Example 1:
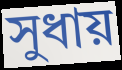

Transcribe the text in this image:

সুধায়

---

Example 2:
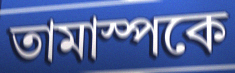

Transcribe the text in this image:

তামাস্পকে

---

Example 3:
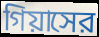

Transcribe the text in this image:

গিয়াসের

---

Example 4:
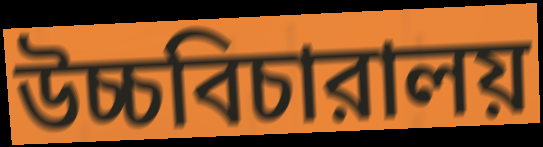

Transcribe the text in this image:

উচ্চবিচারালয়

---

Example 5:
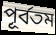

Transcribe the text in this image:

পূর্বতম